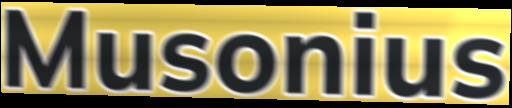
Musonius